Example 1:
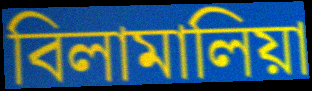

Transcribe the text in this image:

বিলামালিয়া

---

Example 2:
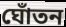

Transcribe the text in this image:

ঘোঁতন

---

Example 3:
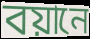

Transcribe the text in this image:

বয়ানে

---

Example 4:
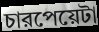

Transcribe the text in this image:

চারপেয়েটা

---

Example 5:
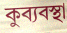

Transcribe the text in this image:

কুব্যবস্থা